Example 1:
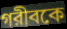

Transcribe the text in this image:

গরীবকে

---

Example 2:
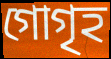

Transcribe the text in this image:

গোগৃহ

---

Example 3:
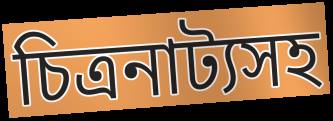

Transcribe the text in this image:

চিত্রনাট্যসহ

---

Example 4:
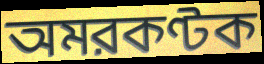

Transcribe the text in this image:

অমরকণ্টক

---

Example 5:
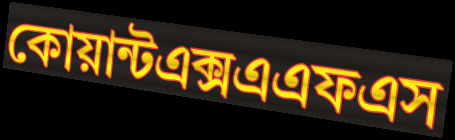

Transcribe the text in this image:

কোয়ান্টএক্সএএফএস